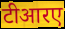
टीआरए